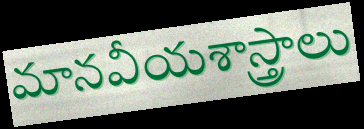
మానవీయశాస్త్రాలు